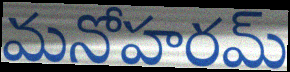
మనోహరమ్